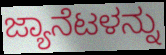
ಜ್ಯಾನೆಟಳನ್ನು